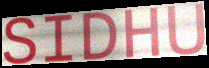
SIDHU